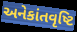
અનેકાંતવૃષ્ટિ